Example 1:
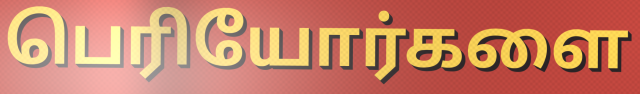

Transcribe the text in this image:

பெரியோர்களை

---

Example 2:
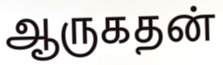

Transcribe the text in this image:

ஆருகதன்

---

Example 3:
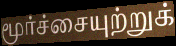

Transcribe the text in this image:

மூர்ச்சையுற்றுக்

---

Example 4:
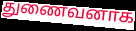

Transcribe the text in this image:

துணைவனாக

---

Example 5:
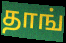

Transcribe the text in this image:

தாங்